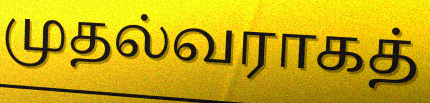
முதல்வராகத்